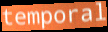
temporal